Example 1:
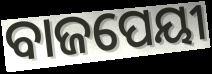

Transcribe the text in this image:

ବାଜପେୟୀ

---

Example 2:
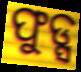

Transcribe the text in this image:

ଫୁଡ୍ସ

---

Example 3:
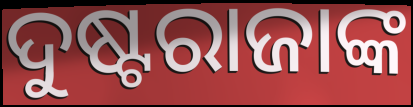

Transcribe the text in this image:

ଦୁଷ୍ଟରାଜାଙ୍କ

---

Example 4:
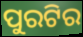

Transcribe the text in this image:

ପୁରଟିର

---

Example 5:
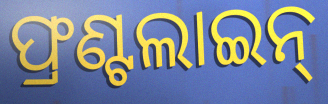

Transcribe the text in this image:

ଫ୍ରଣ୍ଟଲାଇନ୍